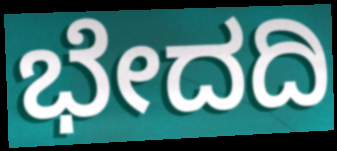
ಭೇದದಿ